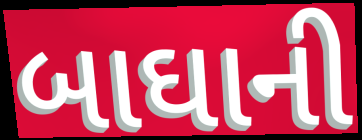
બાઘાની